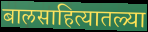
बालसाहित्यातल्या